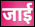
जाई